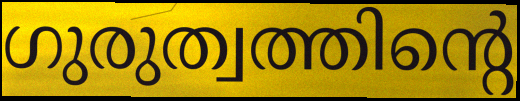
ഗുരുത്വത്തിന്റെ